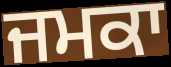
ਜਮਕਾ